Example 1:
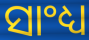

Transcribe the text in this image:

ସାଂଧ୍ୟ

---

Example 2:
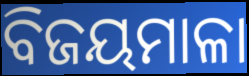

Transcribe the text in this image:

ବିଜୟମାଳା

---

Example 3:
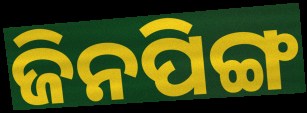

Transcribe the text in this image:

ଜିନପିଙ୍ଗ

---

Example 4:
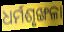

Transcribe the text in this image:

ଧର୍ମଶୃଙ୍ଖଳା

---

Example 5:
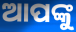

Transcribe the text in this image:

ଆପଙ୍କୁ